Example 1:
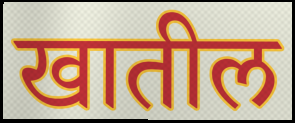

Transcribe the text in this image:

खातील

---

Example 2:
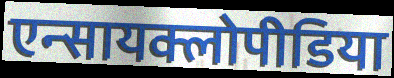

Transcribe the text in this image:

एन्सायक्लोपीडिया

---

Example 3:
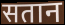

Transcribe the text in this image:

सतान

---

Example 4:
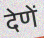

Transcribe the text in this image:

देणें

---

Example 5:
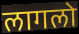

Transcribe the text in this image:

लागलो